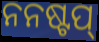
ନନଷ୍ଟପ୍